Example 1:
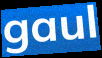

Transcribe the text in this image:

gaul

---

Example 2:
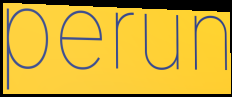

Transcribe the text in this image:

perun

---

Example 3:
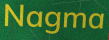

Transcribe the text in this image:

Nagma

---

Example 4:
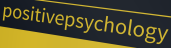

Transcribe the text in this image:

positivepsychology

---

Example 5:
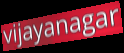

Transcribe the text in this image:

vijayanagar